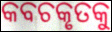
କବଚକୃତକୁ